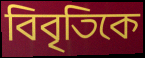
বিবৃতিকে